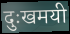
दुःखमयी